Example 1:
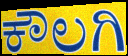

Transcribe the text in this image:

ಕೌಲಗಿ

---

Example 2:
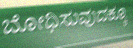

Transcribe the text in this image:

ಬೋಧಿಸುವುದಕ್ಕೂ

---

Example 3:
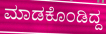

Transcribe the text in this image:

ಮಾಡಕೊಂಡಿದ್ದ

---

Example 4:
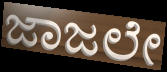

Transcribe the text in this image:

ಜಾಜಲೇ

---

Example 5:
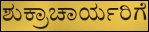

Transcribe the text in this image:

ಶುಕ್ರಾಚಾರ್ಯರಿಗೆ